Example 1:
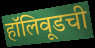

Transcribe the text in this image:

हॉलिवूडची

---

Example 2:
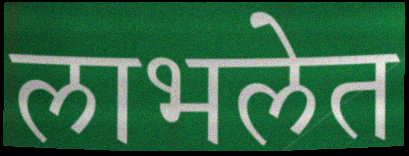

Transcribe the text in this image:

लाभलेत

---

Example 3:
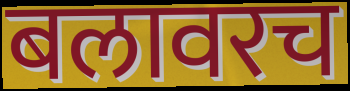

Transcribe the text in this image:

बलावरच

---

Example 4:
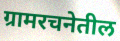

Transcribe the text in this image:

ग्रामरचनेतील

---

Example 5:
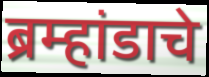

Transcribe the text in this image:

ब्रम्हांडाचे